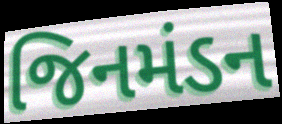
જિનમંડન